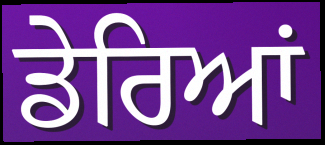
ਡੇਰਿਆਂ